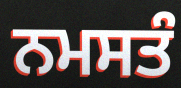
ਨਮਸਤੰ